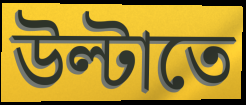
উল্টাতে